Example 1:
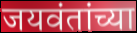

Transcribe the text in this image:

जयवंतांच्या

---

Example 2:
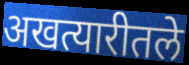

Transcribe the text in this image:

अखत्यारीतले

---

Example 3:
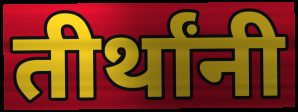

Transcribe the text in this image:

तीर्थांनी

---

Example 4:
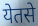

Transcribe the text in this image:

येतसे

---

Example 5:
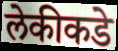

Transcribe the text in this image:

लेकीकडे